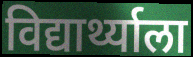
विद्यार्थ्याला